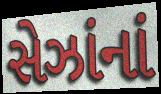
સેઝાંનાં